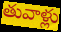
తువాళ్లు